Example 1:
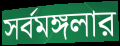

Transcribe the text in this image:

সর্বমঙ্গলার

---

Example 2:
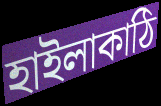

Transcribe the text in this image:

হাইলাকাঠি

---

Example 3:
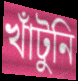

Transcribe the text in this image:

খাঁটুনি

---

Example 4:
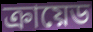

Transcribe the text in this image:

ক্রায়েড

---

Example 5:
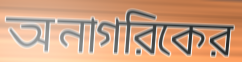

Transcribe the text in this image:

অনাগরিকের